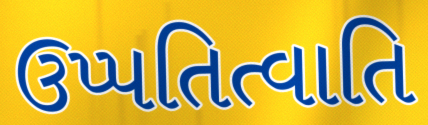
ઉપ્પતિત્વાતિ